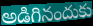
అడిగినందుకు